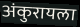
अंकुरायला